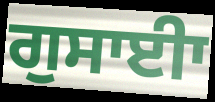
ਗੁਸਾਈਾ